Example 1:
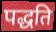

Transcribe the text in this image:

पद्धति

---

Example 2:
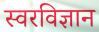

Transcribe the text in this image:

स्वरविज्ञान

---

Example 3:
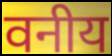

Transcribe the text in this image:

वनीय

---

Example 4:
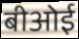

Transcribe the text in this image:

बीओई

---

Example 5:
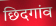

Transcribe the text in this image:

छिदगांव